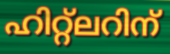
ഹിറ്റ്ലറിന്